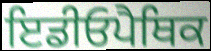
ਇਡੀਓਪੈਥਿਕ